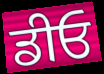
ਡੀਓ